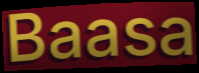
Baasa